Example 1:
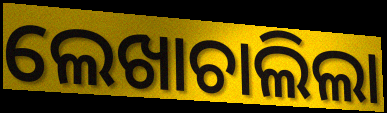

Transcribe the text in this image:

ଲେଖାଚାଲିଲା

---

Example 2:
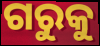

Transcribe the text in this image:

ଗରୁକୁ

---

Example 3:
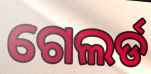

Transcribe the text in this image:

ଗେଲର୍ଡ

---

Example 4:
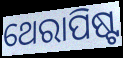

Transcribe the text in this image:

ଥେରାପିଷ୍ଟ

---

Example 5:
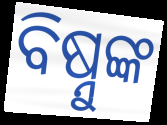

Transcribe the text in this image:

ବିଷ୍ନୁଙ୍କ